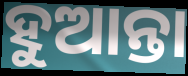
ହୁଆନ୍ତା